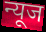
न्यूज